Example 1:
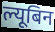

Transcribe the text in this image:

ल्यूबिन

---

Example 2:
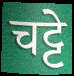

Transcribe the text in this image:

चट्टे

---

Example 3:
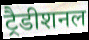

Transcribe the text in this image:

ट्रैडीशनल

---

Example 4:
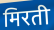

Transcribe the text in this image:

मिरती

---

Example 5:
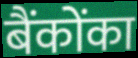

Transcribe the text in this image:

बैंकोंका